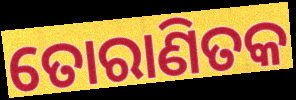
ତୋରାଣିତକ